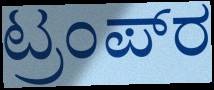
ಟ್ರಂಪ್‍ರ